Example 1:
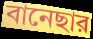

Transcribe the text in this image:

বানেছার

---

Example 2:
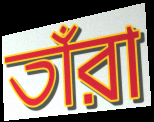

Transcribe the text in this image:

তাঁরা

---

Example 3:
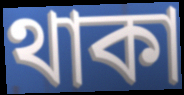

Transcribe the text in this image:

থাকা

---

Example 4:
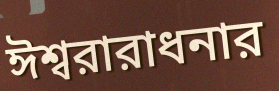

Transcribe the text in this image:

ঈশ্বরারাধনার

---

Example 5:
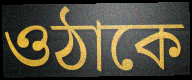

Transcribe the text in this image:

ওঠাকে